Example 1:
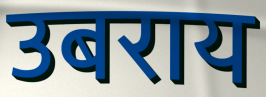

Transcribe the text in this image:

उबराय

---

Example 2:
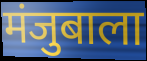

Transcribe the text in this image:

मंजुबाला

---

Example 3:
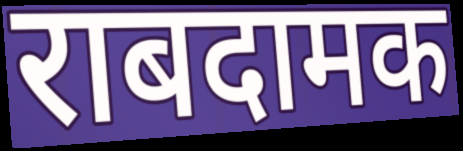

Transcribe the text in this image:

राबदामक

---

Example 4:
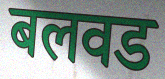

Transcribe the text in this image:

बलवड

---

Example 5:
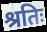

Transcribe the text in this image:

श्रतिः